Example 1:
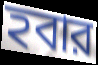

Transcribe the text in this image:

হবার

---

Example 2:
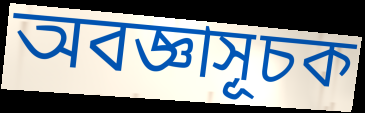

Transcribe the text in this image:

অবজ্ঞাসূচক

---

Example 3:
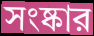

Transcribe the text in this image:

সংষ্কার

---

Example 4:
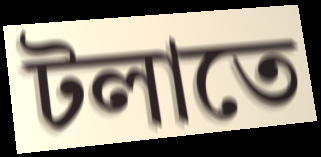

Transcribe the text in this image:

টলাতে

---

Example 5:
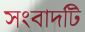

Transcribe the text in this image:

সংবাদটি